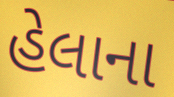
હેલાના